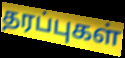
தரப்புகள்